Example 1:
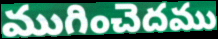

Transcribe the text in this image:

ముగించెదము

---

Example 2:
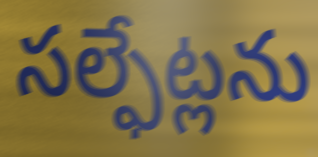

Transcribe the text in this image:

సల్ఫేట్లను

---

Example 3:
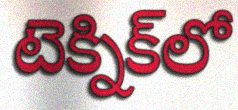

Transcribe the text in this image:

టెక్నిక్‌లో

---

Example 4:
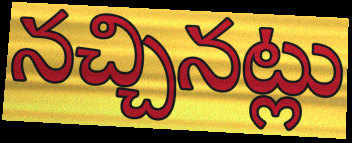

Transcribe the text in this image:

నచ్చినట్లు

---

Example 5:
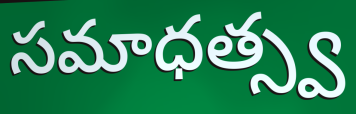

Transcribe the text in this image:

సమాధత్స్వ